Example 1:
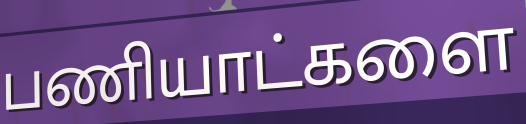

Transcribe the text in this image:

பணியாட்களை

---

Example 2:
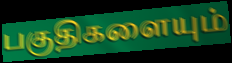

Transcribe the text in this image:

பகுதிகளையும்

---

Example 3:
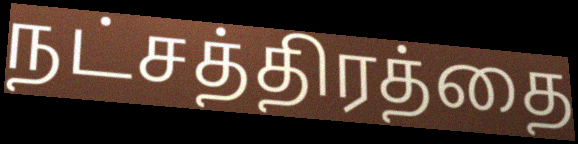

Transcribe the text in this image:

நட்சத்திரத்தை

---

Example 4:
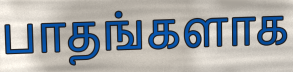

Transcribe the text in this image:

பாதங்களாக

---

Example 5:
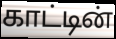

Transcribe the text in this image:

காட்டின்